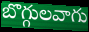
బొగ్గులవాగు